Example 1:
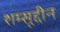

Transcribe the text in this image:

शम्सूद्दीन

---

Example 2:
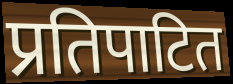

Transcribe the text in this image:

प्रतिपाटित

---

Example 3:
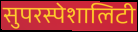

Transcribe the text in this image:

सुपरस्पेशालिटी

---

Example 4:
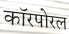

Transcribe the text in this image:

कॉरपोरल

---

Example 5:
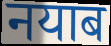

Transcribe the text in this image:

नयाब